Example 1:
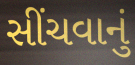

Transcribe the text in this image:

સીંચવાનું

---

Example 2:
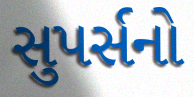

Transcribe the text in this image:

સુપર્સનો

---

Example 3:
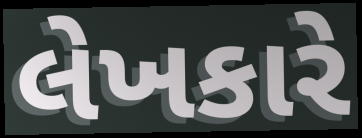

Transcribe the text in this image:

લેખકારે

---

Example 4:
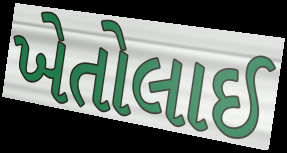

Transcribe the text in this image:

ખેતોલાઈ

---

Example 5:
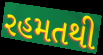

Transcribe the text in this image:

રહમતથી